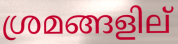
ശ്രമങ്ങളില്